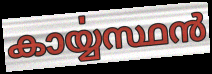
കാൎയ്യസ്ഥൻ